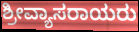
ಶ್ರೀವ್ಯಾಸರಾಯರು